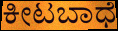
ಕೀಟಬಾಧೆ